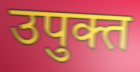
उपुक्त